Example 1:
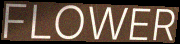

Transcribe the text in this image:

FLOWER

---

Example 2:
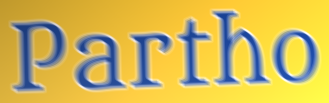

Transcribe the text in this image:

Partho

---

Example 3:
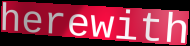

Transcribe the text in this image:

herewith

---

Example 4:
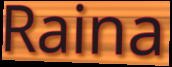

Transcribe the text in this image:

Raina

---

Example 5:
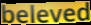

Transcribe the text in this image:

beleved